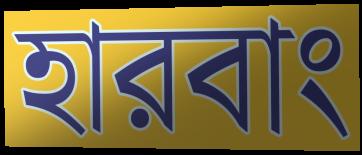
হারবাং